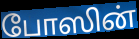
போஸின்